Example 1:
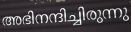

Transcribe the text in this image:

അഭിനന്ദിച്ചിരുന്നു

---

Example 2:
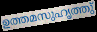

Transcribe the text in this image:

ഉത്തമസുഹൃത്തു്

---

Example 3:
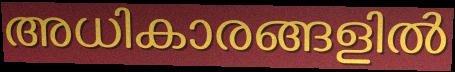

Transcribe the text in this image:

അധികാരങ്ങളിൽ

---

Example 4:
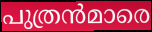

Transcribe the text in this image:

പുത്രൻമാരെ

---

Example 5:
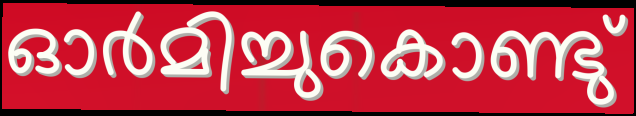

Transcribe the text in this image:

ഓർമിച്ചുകൊണ്ടു്